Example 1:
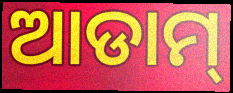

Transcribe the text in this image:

ଆଡାମ୍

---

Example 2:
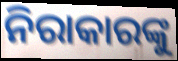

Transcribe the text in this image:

ନିରାକାରଙ୍କୁ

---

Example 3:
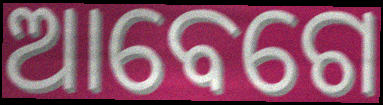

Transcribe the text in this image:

ଆବେଗେ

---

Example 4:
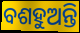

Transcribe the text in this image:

ବଶହୁଅନ୍ତି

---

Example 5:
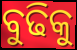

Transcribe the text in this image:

ବୁଢିକୁ